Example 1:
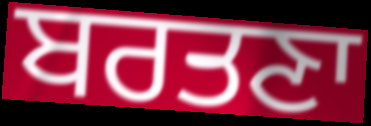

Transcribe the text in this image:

ਬਰਤਣਾ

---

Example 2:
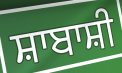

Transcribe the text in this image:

ਸ਼ਾਬਾਸ਼ੀ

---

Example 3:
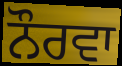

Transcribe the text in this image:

ਨੌਰਵਾ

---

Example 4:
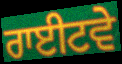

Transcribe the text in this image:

ਰਾਈਟਵੇ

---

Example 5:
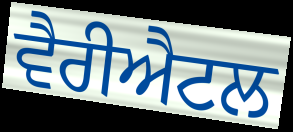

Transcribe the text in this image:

ਵੈਰੀਐਟਲ